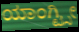
ಯಾಂಗ್ಟ್ಸೀ